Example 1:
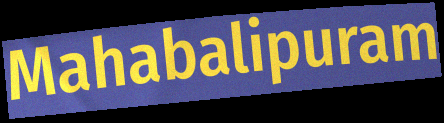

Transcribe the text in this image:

Mahabalipuram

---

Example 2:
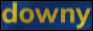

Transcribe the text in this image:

downy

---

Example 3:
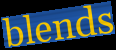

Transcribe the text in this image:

blends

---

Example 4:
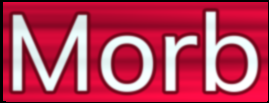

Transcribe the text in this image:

Morb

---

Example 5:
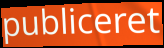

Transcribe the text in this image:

publiceret